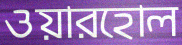
ওয়ারহোল